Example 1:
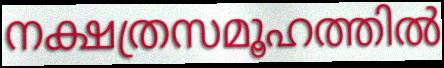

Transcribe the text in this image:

നക്ഷത്രസമൂഹത്തിൽ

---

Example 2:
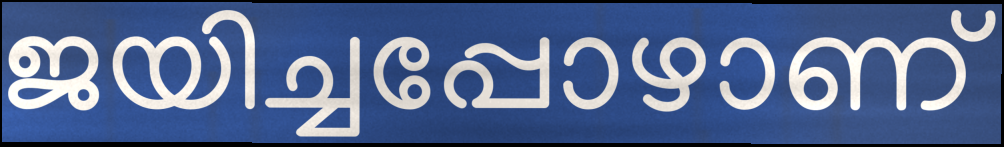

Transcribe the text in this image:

ജയിച്ചപ്പോഴാണ്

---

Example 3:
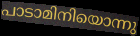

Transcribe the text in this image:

പാടാമിനിയൊന്നു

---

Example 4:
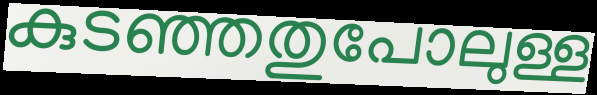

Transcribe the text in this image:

കുടഞ്ഞതുപോലുള്ള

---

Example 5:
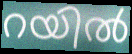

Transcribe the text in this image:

റയിൽ